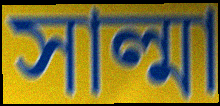
সাল্মা